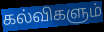
கல்விகளும்